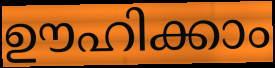
ഊഹിക്കാം